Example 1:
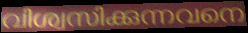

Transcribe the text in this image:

വിശ്വസിക്കുന്നവനെ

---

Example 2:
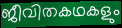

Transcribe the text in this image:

ജീവിതകഥകളും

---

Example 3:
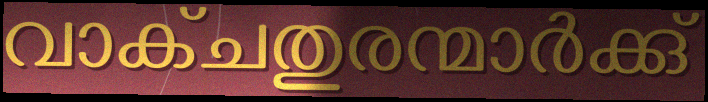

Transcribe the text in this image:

വാക്ചതുരന്മാർക്കു്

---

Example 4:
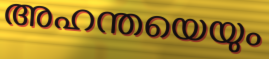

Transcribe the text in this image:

അഹന്തയെയും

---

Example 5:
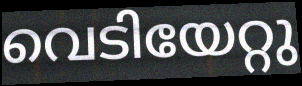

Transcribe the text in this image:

വെടിയേറ്റു